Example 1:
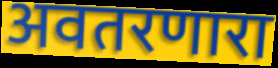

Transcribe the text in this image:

अवतरणारा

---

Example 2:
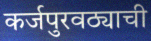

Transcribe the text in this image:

कर्जपुरवठ्याची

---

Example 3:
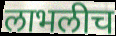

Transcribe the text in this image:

लाभलीच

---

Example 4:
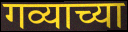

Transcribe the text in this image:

गव्याच्या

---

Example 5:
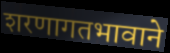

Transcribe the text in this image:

शरणागतभावाने